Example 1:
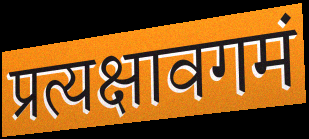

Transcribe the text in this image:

प्रत्यक्षावगमं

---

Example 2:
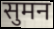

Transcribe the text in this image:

सुमन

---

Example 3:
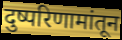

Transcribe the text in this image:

दुष्परिणामांतून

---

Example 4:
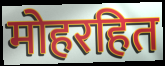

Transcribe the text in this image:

मोहरहित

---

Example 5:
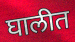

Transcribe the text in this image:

घालीत